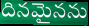
దినమైనను